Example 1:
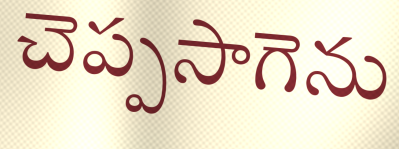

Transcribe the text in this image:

చెప్పసాగెను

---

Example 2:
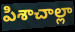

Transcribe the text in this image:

పిశాచాల్లా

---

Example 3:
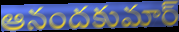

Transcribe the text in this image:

ఆనందకుమార్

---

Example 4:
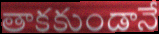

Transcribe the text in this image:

తాకకుండానే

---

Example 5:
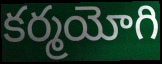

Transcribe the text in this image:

కర్మయోగి